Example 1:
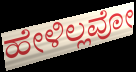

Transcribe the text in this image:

ಹೇಳಿಲ್ಲವೋ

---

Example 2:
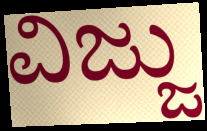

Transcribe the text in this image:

ವಿಜ್ಜು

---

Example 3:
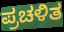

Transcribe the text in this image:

ಪ್ರಚಳಿತ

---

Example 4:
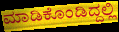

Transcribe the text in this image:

ಮಾಡಿಕೊಂಡಿದ್ದಲ್ಲಿ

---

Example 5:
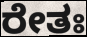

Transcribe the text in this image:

ರೇತಃ